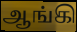
ஆங்கி